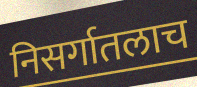
निसर्गातलाच